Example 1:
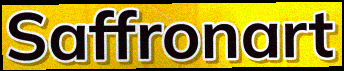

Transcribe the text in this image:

Saffronart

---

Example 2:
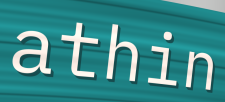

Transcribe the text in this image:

athin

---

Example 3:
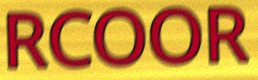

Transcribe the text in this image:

RCOOR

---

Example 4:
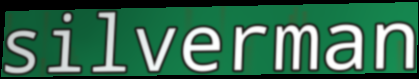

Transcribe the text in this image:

silverman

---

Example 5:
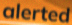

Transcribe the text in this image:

alerted